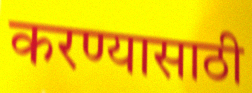
करण्‍यासाठी